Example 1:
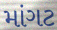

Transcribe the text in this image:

માંગટ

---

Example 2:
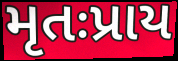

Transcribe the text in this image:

મૃતઃપ્રાય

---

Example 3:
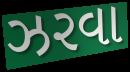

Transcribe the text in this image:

ઝરવા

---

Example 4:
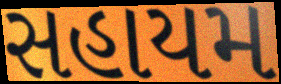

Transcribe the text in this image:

સહાયમ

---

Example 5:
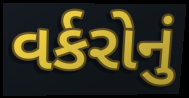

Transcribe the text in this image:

વર્કરોનું